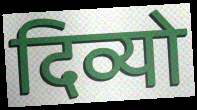
दिव्यो